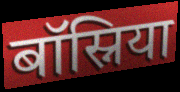
बॉस्निया